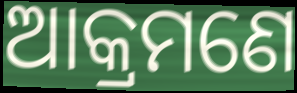
ଆକ୍ରମଣେ